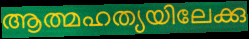
ആത്മഹത്യയിലേക്കു